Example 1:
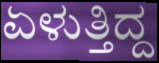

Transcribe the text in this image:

ಏಳುತ್ತಿದ್ದ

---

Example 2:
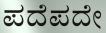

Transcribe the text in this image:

ಪದೆಪದೇ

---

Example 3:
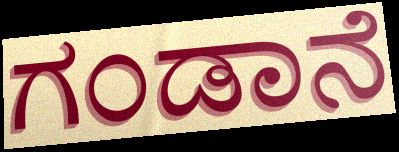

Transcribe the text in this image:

ಗಂಡಾನೆ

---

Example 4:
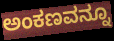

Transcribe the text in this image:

ಅಂಕಣವನ್ನೂ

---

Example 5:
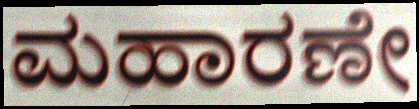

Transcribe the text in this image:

ಮಹಾರಣೇ